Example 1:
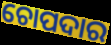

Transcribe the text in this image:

ଚୋପଦାର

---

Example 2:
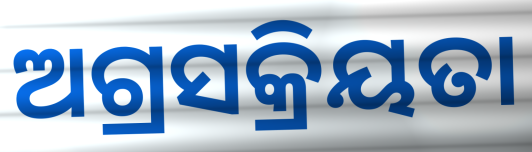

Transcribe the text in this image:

ଅଗ୍ରସକ୍ରିୟତା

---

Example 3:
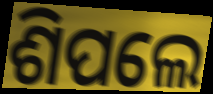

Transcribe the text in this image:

ଶିପଲେ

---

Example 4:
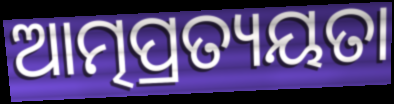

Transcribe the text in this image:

ଆତ୍ମପ୍ରତ୍ୟୟତା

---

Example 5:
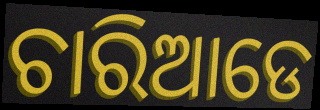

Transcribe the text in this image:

ଚାରିଆଡେ